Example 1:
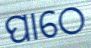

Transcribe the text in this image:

ପାଠେ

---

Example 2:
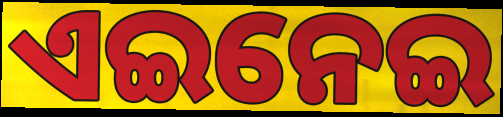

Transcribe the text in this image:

ଏଇନେଇ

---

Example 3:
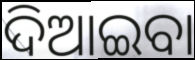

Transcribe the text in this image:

ଦିଆଇବା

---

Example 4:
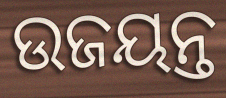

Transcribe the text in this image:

ଉଜୟନ୍ତ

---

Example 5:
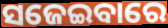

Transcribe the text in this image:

ସଜେଇବାରେ